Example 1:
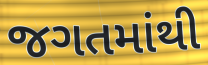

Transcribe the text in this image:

જગતમાંથી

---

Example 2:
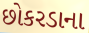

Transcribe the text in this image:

છોકરડાના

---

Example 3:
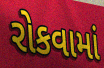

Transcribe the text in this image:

રોકવામાં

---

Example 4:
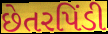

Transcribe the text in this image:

છેતરપિંડી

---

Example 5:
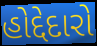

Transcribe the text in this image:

હોદ્દેદારો